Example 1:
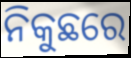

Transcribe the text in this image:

ନିକୁଛରେ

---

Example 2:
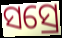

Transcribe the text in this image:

ସସ୍ରେ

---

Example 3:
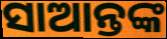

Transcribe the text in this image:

ସାଆନ୍ତଙ୍କ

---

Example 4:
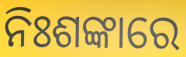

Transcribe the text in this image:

ନିଃଶଙ୍କାରେ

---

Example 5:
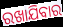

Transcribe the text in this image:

ରଖାଯିବାର